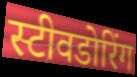
स्टीवडोरिंग